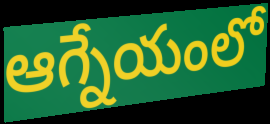
ఆగ్నేయంలో